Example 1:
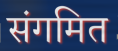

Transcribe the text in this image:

संगमित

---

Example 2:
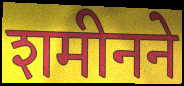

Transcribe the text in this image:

शमीनने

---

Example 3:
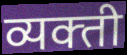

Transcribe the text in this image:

व्यक्‍ती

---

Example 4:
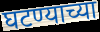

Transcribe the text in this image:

घटण्याच्या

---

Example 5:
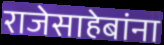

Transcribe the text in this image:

राजेसाहेबांना